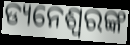
ଡ୍ୟନେଶ୍ୱରଙ୍କ